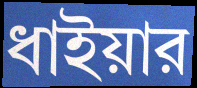
ধাইয়ার